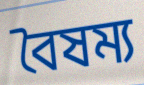
বৈষম্য